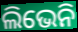
ଲିଭେନି